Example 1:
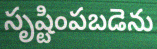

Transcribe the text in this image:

సృష్టింపబడెను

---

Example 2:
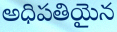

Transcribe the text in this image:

అధిపతియైన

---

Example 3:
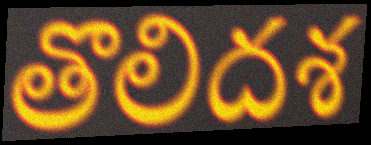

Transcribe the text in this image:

తొలిదశ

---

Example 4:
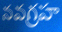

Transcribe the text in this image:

నవగ్రహ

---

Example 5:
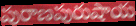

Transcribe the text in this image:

పురాణపురుషాయ